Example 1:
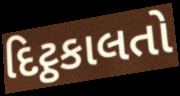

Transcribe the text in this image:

દિટ્ઠકાલતો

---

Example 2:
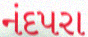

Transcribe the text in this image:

નંદપરા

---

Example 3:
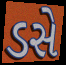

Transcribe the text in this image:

ડસે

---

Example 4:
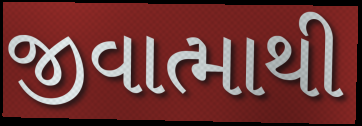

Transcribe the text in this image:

જીવાત્માથી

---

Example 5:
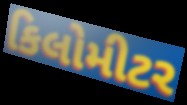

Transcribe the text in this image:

કિલોમીટર